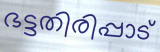
ഭട്ടതിരിപ്പാട്